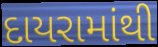
દાયરામાંથી